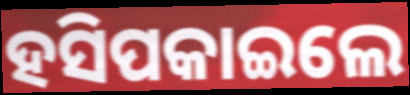
ହସିପକାଇଲେ